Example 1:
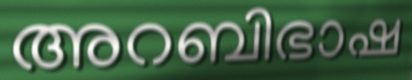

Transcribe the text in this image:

അറബിഭാഷ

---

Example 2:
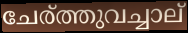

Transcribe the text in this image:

ചേര്ത്തുവച്ചാല്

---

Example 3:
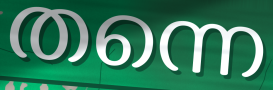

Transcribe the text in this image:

തന്നെ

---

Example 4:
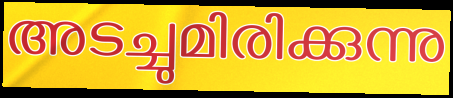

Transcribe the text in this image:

അടച്ചുമിരിക്കുന്നു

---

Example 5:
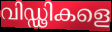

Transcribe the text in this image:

വിഡ്ഢികളെ